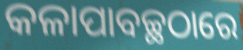
କଳାପାବଚ୍ଛଠାରେ